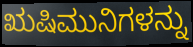
ಋಷಿಮುನಿಗಳನ್ನು